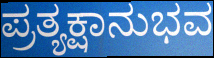
ಪ್ರತ್ಯಕ್ಷಾನುಭವ